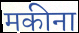
मकीना